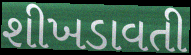
શીખડાવતી